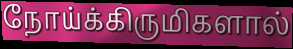
நோய்க்கிருமிகளால்